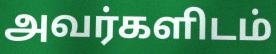
அவர்களிடம்